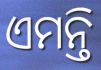
ଏମନ୍ତି